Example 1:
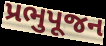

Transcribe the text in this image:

પ્રભુપૂજન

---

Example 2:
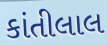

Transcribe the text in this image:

કાંતીલાલ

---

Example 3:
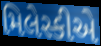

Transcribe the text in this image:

મિલેસ્કીએ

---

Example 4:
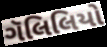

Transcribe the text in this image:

ગૅલિલિયો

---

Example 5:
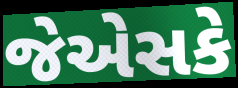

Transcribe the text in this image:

જેએસકે